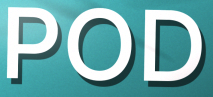
POD